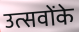
उत्सवोंके